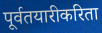
पूर्वतयारीकरिता